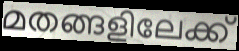
മതങ്ങളിലേക്ക്